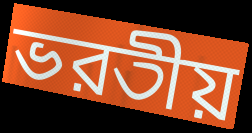
ভরতীয়